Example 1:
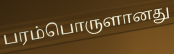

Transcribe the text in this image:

பரம்பொருளானது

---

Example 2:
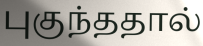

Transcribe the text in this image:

புகுந்ததால்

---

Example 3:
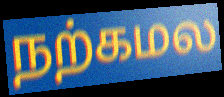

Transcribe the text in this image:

நற்கமல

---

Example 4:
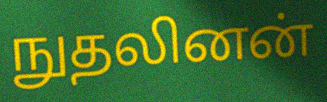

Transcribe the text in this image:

நுதலினன்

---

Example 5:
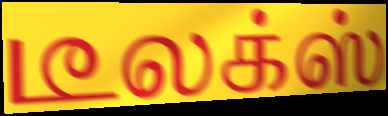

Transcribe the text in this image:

டீலக்ஸ்